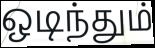
ஒடிந்தும்